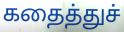
கதைத்துச்